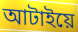
আটাইয়ে